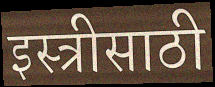
इस्त्रीसाठी